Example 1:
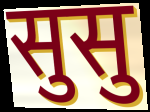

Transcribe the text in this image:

सुसु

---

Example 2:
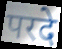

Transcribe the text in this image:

परदे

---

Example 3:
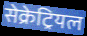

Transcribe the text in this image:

सेक्रेट्रियल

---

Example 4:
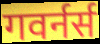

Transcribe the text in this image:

गवर्नर्स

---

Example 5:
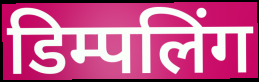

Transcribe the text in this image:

डिम्पलिंग